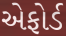
એફોર્ડ